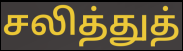
சலித்துத்